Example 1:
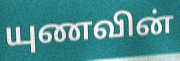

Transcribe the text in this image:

யுணவின்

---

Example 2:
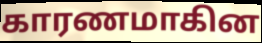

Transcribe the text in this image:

காரணமாகின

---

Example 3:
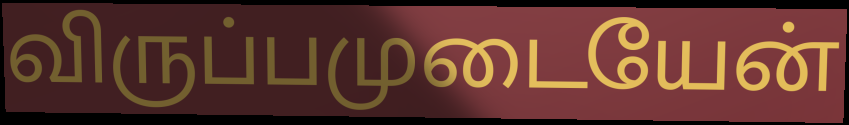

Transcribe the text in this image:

விருப்பமுடையேன்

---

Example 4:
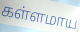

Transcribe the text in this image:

கள்ளமாய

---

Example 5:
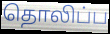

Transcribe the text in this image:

தொலிப்ப